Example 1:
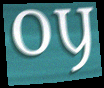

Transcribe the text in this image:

oy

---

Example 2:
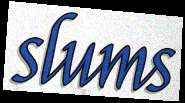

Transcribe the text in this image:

slums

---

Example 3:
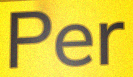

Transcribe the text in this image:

Per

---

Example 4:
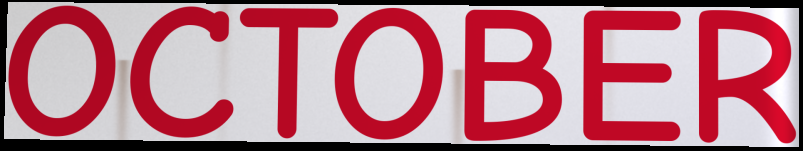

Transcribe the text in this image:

OCTOBER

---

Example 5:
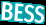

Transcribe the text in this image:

BESS